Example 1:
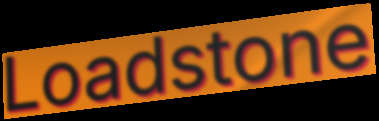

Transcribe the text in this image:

Loadstone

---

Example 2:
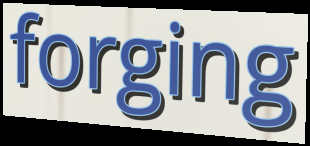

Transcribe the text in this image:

forging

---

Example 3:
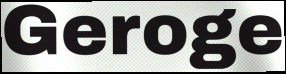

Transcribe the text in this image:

Geroge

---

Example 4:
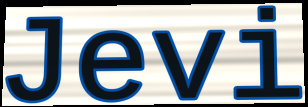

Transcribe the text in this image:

Jevi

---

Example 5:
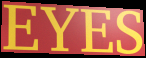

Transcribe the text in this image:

EYES